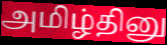
அமிழ்தினு